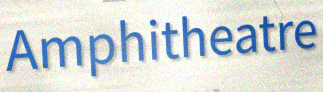
Amphitheatre